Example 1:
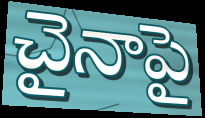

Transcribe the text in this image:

చైనాపై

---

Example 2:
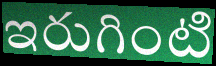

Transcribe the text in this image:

ఇరుగింటి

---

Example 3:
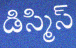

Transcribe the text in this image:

డిస్మిస్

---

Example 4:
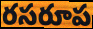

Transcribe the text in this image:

రసరూప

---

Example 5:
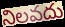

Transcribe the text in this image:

నిలవదు